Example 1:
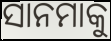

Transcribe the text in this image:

ସାନମାକୁ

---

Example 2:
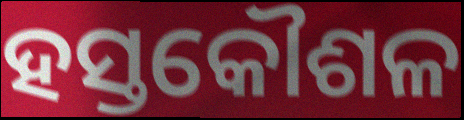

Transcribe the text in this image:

ହସ୍ତକୌଶଳ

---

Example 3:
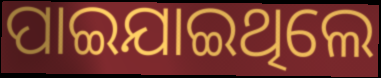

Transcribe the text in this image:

ପାଇଯାଇଥିଲେ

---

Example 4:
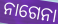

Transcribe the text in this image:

ନାଗେନା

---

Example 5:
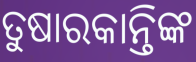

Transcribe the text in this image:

ତୁଷାରକାନ୍ତିଙ୍କ